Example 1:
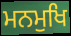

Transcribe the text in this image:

ਮਨਮੁਖਿ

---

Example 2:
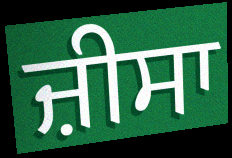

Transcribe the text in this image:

ਜ਼ੀਸਾ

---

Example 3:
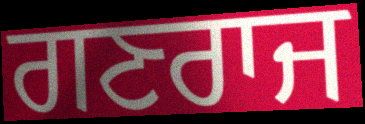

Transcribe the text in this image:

ਗਣਰਾਜ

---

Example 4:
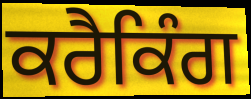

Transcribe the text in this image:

ਕਰੈਕਿੰਗ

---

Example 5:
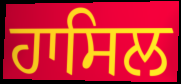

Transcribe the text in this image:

ਹਾਸਿਲ